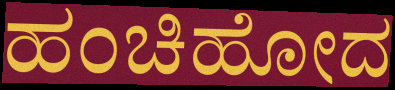
ಹಂಚಿಹೋದ